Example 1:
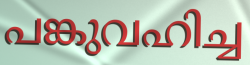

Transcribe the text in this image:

പങ്കുവഹിച്ച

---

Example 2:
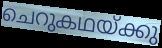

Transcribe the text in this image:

ചെറുകഥയ്ക്കു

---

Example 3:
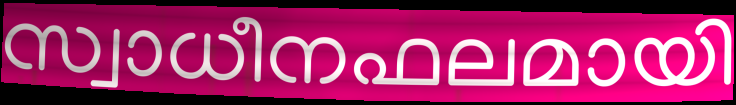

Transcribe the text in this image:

സ്വാധീനഫലമായി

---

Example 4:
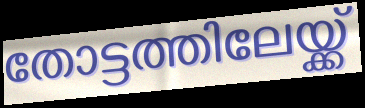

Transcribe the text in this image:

തോട്ടത്തിലേയ്ക്ക്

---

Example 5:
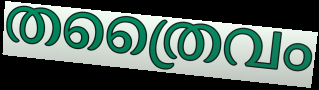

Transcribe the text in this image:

തത്രൈവം